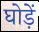
घोड़ें